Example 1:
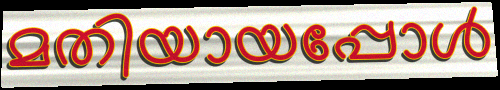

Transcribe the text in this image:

മതിയായപ്പോൾ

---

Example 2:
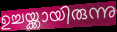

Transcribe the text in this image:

ഉച്ചയ്ക്കായിരുന്നു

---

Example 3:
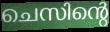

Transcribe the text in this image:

ചെസിന്റെ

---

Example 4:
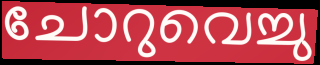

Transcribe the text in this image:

ചോറുവെച്ചു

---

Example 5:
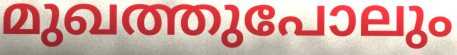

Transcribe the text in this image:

മുഖത്തുപോലും